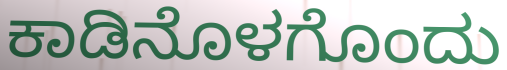
ಕಾಡಿನೊಳಗೊಂದು